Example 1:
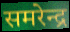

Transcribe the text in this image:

समरेन्द्र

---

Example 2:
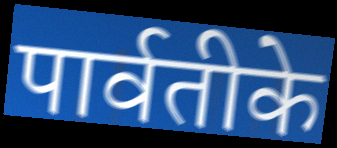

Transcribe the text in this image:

पार्वतीके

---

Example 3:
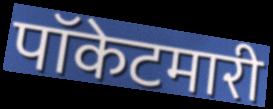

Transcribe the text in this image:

पॉकेटमारी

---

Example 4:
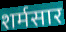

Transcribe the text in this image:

शर्मसार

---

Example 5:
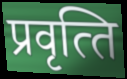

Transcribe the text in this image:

प्रवृत्‍ति